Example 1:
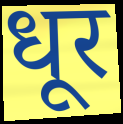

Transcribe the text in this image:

धूर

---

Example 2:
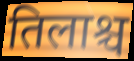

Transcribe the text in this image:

तिलाश्च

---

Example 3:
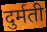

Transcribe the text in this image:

दुर्मती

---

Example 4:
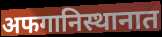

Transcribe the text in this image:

अफगानिस्थानात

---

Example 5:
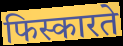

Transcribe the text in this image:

फिस्कारते